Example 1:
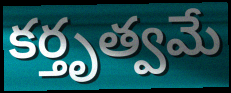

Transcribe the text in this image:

కర్తృత్వమే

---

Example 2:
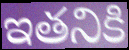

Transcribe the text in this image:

ఇతనికి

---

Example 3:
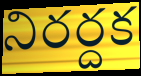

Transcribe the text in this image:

నిరర్దక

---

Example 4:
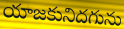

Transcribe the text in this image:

యాజకునిదగును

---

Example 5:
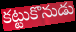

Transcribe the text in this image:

కట్టుకొనుడు